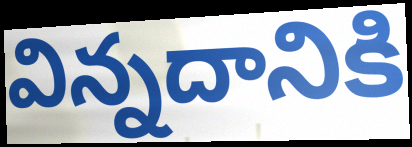
విన్నదానికి